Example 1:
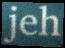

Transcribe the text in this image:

jeh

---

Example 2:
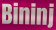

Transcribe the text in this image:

Bininj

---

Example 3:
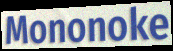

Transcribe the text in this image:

Mononoke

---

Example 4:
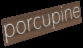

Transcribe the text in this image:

porcupine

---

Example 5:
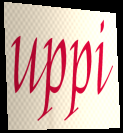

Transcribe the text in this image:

uppi